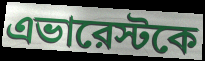
এভারেস্টকে